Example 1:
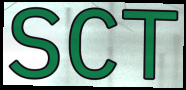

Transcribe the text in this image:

SCT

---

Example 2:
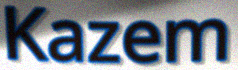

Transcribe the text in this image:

Kazem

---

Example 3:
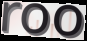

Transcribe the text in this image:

roo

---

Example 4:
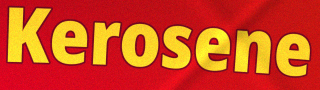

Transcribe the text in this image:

Kerosene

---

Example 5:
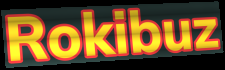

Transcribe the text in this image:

Rokibuz